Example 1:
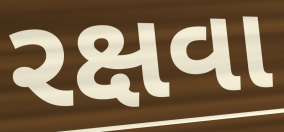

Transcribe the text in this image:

રક્ષવા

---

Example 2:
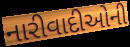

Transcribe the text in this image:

નારીવાદીઓની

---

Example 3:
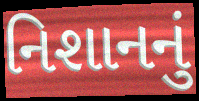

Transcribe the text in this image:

નિશાનનું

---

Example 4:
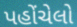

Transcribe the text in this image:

પહોંચેલો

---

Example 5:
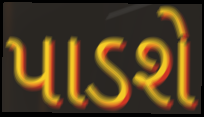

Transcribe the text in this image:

પાડશે